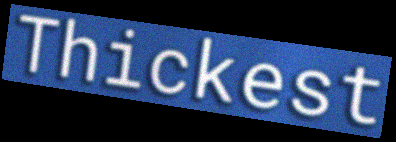
Thickest